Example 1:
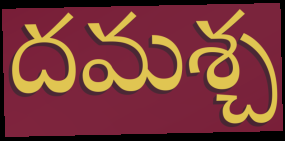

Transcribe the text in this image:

దమశ్చ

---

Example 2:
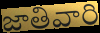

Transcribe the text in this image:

జాతివారి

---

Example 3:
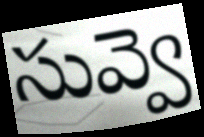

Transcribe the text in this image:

సువ్వె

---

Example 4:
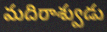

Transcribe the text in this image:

మదిరాశ్వుడు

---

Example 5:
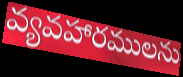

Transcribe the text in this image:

వ్యవహారములను